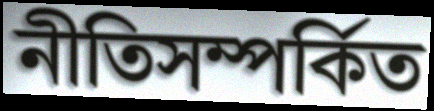
নীতিসম্পর্কিত